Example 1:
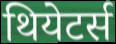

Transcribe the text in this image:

थियेटर्स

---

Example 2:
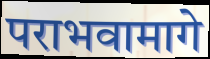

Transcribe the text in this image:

पराभवामागे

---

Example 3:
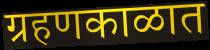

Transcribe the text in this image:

ग्रहणकाळात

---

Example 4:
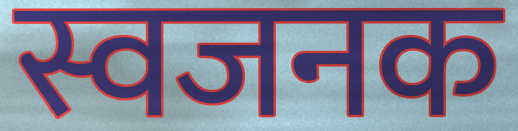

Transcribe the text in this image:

स्वजनक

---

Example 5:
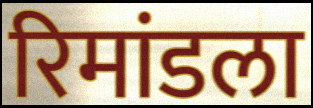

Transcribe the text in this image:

रिमांडला